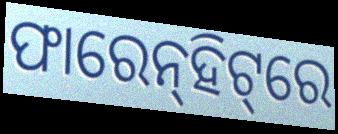
ଫାରେନ୍‌ହିଟ୍‌ରେ